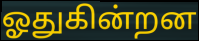
ஓதுகின்றன